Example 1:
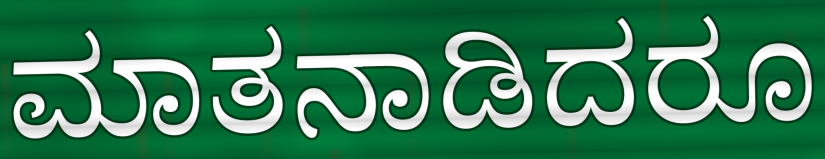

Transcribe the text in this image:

ಮಾತನಾಡಿದರೂ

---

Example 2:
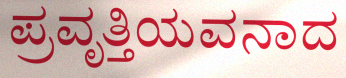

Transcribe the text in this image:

ಪ್ರವೃತ್ತಿಯವನಾದ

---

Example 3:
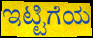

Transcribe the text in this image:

ಇಟ್ಟಿಗೆಯ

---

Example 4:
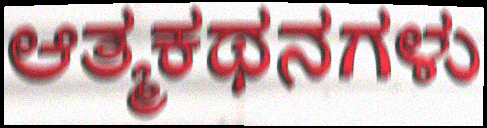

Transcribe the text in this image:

ಆತ್ಮಕಥನಗಳು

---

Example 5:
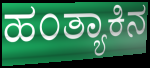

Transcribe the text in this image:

ಹಂತ್ಯಾಕಿನ